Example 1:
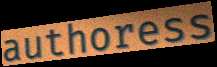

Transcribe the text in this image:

authoress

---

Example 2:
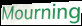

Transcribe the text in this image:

Mourning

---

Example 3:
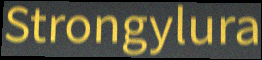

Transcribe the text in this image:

Strongylura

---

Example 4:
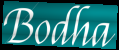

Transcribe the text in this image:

Bodha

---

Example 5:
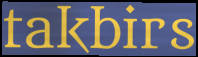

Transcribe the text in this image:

takbirs